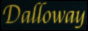
Dalloway